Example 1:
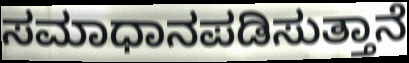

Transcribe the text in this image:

ಸಮಾಧಾನಪಡಿಸುತ್ತಾನೆ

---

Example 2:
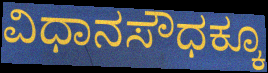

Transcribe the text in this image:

ವಿಧಾನಸೌಧಕ್ಕೂ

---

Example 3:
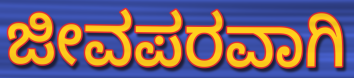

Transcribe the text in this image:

ಜೀವಪರವಾಗಿ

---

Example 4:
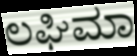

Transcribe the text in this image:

ಲಘಿಮಾ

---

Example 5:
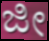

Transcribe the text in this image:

ಜೀ